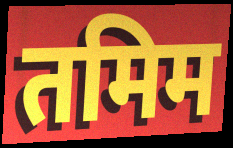
तमिम